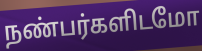
நண்பர்களிடமோ